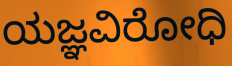
ಯಜ್ಞವಿರೋಧಿ